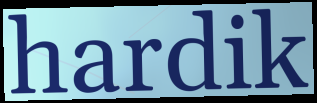
hardik